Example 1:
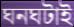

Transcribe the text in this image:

ঘনঘটাই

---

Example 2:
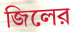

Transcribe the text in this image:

জিলের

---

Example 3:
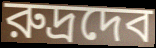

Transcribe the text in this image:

রুদ্রদেব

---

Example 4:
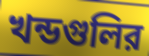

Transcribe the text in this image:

খন্ডগুলির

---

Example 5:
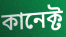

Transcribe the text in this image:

কানেক্ট